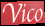
Vico